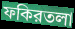
ফকিরতলা